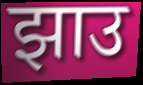
झाउ